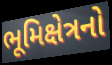
ભૂમિક્ષેત્રનો